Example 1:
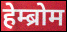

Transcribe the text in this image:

हेम्ब्रोम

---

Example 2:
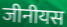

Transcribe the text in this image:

जीनीयस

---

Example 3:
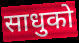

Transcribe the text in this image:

साधुको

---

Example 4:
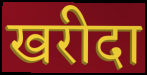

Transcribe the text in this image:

खरीदा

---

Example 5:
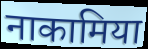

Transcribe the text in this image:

नाकामिया